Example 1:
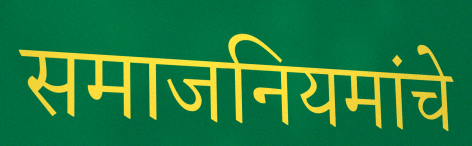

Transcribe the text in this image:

समाजनियमांचे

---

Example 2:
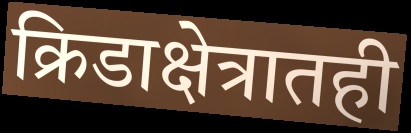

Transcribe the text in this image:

क्रिडाक्षेत्रातही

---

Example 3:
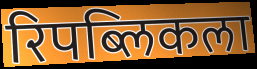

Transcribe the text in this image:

रिपब्लिकला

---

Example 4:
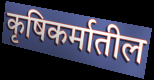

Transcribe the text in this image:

कृषिकर्मातील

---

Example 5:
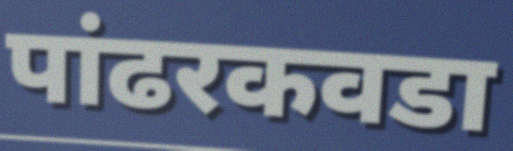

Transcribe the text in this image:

पांढरकवडा